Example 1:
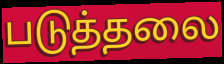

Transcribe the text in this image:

படுத்தலை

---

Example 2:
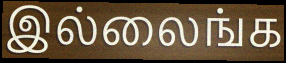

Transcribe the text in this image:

இல்லைங்க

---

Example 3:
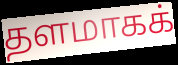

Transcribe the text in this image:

தளமாகக்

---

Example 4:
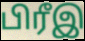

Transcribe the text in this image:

பிரீஇ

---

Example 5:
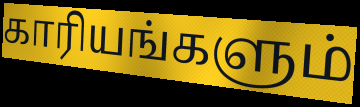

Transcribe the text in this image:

காரியங்களும்